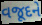
વજૂદને